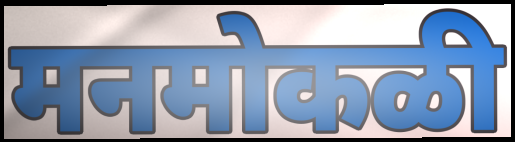
मनमोकळी